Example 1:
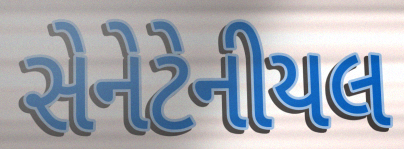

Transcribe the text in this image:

સેનેટેનીયલ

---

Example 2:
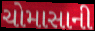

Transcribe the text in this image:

ચોમાસાની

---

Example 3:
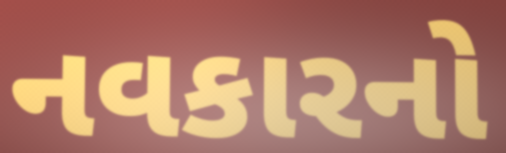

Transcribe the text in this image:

નવકારનો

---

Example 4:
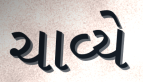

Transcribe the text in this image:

ચાવ્યે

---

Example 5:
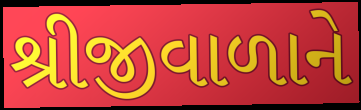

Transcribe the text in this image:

શ્રીજીવાળાને